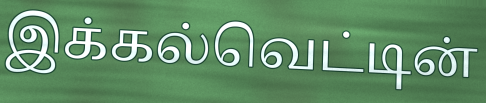
இக்கல்வெட்டின்